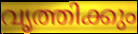
വൃത്തിക്കും